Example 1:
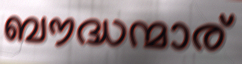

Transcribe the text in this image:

ബൗദ്ധന്മാര്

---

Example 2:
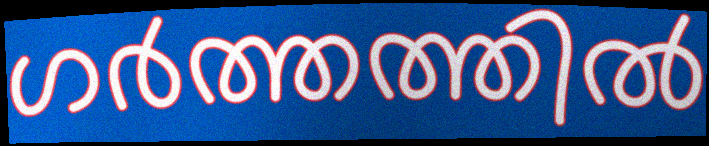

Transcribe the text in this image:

ഗർത്തത്തിൽ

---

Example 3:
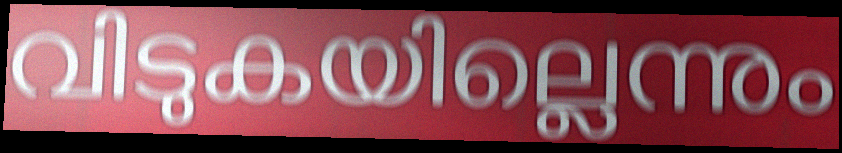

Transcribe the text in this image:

വിടുകയില്ലെന്നും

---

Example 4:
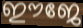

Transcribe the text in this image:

ഈജേ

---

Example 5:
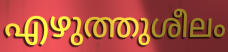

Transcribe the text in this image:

എഴുത്തുശീലം